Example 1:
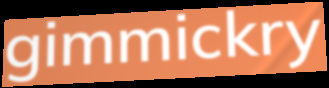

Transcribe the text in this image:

gimmickry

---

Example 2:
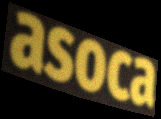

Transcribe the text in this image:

asoca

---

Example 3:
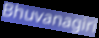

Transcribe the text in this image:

Bhuvanagiri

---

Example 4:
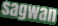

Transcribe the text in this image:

sagwan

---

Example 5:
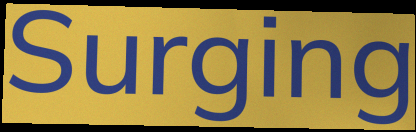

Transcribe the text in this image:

Surging